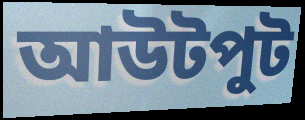
আউটপুট